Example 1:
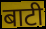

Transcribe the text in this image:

बाटी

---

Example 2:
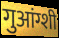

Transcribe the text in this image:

गुआंग्शी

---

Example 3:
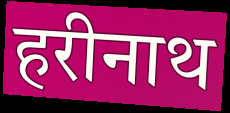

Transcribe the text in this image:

हरीनाथ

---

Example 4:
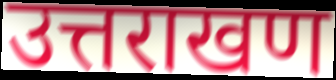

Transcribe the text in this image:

उत्तराखण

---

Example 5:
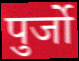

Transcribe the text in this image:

पुर्जो